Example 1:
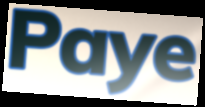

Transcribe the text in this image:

Paye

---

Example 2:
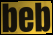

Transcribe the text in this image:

beb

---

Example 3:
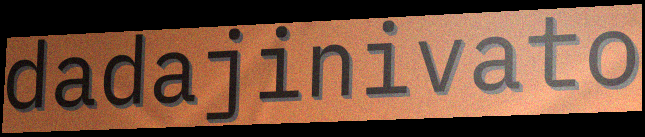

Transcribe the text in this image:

dadajinivato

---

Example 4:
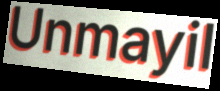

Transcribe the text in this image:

Unmayil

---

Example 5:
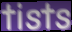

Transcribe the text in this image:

tists